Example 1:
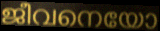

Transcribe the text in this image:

ജീവനെയോ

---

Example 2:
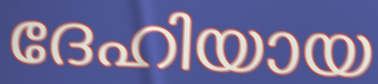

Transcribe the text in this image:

ദേഹിയായ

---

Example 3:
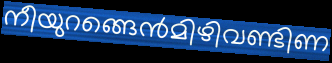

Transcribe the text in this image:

നീയുറങ്ങെൻമിഴിവണ്ടിണ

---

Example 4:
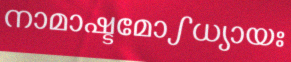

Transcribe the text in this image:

നാമാഷ്ടമോഽധ്യായഃ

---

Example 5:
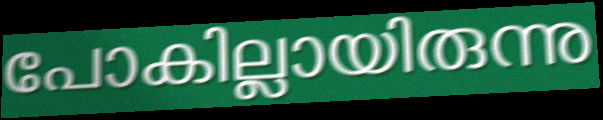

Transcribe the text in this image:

പോകില്ലായിരുന്നു